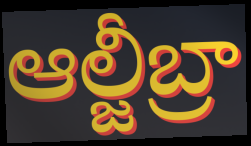
ఆల్జీబ్రా